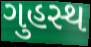
ગુહસ્થ